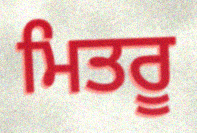
ਮਿਤਰੂ